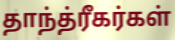
தாந்த்ரீகர்கள்